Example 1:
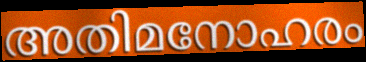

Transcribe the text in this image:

അതിമനോഹരം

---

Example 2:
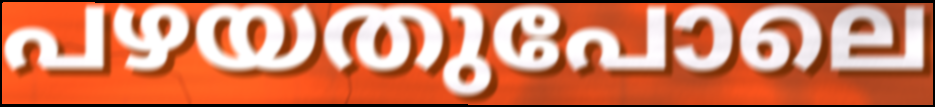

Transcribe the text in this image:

പഴയതുപോലെ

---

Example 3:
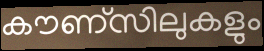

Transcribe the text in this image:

കൗണ്സിലുകളും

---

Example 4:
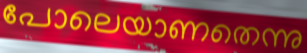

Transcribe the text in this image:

പോലെയാണതെന്നു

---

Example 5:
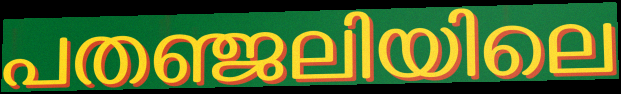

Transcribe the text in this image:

പതഞ്ജലിയിലെ